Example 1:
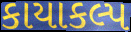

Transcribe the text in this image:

કાયાકલ્પ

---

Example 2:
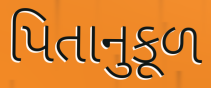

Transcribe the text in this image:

પિતાનુકૂળ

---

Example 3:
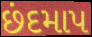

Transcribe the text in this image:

છંદમાપ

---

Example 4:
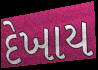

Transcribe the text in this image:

દેખાય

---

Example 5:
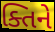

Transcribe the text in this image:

ક્તિને